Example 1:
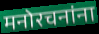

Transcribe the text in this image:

मनोरचनांना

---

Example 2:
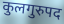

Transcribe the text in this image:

कुलगुरुपद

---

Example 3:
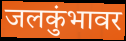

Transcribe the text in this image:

जलकुंभावर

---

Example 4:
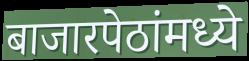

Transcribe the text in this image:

बाजारपेठांमध्ये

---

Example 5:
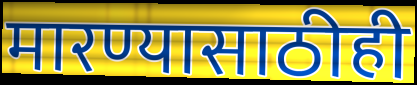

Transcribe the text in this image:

मारण्यासाठीही